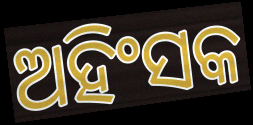
ଅହିଂସକ